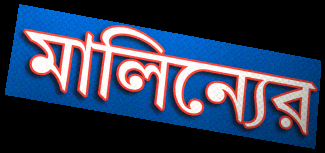
মালিন্যের